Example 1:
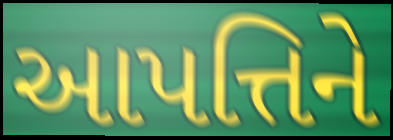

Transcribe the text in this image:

આપત્તિને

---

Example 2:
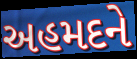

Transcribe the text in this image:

અહમદને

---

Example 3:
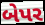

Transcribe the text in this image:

બેપર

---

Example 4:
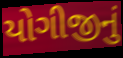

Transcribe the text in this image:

યોગીજીનું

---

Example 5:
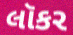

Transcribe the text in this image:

લૉકર